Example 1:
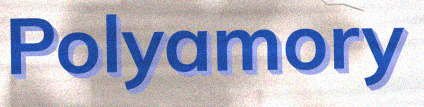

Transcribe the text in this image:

Polyamory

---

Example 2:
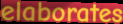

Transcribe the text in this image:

elaborates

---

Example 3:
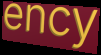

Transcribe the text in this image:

ency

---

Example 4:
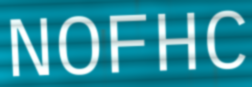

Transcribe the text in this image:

NOFHC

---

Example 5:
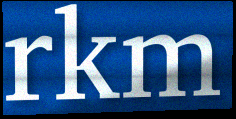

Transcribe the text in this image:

rkm